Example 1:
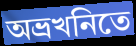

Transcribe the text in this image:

অভ্রখনিতে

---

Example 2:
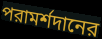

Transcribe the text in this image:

পরামর্শদানের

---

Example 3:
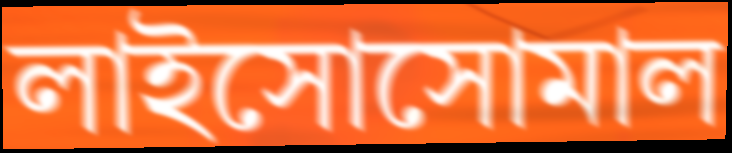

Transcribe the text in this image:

লাইসোসোমাল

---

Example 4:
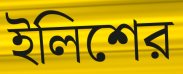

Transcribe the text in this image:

ইলিশের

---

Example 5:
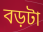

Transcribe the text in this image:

বড়টা